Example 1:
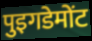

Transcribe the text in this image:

पुइगडेमोंट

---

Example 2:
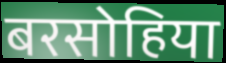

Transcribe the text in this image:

बरसोहिया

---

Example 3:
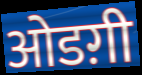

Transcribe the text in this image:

ओडग़ी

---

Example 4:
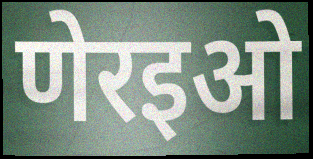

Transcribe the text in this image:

णेरइओ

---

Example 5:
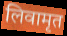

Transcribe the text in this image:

लिवामृत